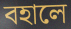
বহালে